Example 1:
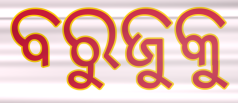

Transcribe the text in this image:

ବରୁଜୁକୁ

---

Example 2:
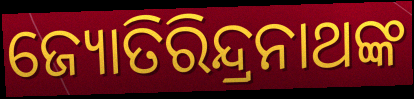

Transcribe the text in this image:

ଜ୍ୟୋତିରିନ୍ଦ୍ରନାଥଙ୍କ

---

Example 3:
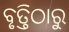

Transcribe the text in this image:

ବୃତ୍ତିଠାରୁ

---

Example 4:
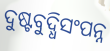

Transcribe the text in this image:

ଦୁଷ୍ଟବୁଦ୍ଧିସଂପନ୍ନ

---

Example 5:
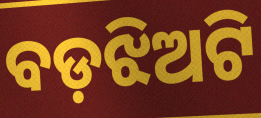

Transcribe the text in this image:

ବଡ଼ଝିଅଟି